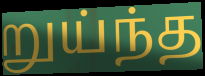
றுய்ந்த